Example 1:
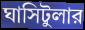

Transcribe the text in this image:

ঘাসিটুলার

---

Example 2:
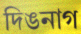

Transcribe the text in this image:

দিঙনাগ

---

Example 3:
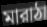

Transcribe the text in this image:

মারাঠা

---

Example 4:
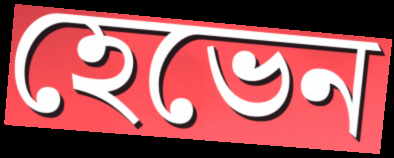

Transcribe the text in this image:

হেভেন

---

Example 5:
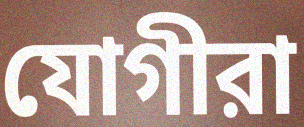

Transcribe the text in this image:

যোগীরা